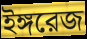
ইঙ্গরেজ